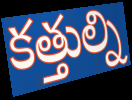
కత్తుల్ని